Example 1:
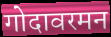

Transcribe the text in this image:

गोदावरमन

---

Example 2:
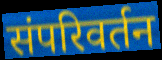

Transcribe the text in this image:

संपरिवर्तन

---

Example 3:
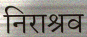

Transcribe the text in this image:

निराश्रव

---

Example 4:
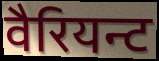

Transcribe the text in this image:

वैरियन्ट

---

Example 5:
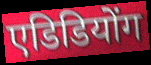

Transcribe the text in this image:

एडिडियोंग